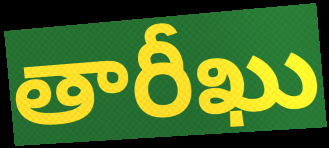
తారీఖు